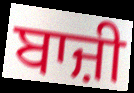
ਬਾਜ਼ੀ